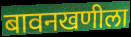
बावनखणीला